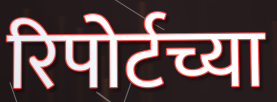
रिपोर्टच्या